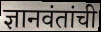
ज्ञानवंतांची